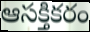
ఆసక్తికరం